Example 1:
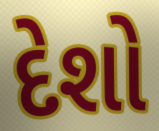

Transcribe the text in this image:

દેશો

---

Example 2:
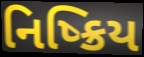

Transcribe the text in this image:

નિષ્ક્રિય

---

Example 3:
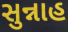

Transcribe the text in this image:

સુન્નાહ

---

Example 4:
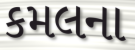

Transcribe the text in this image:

કમલના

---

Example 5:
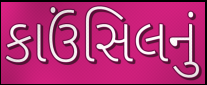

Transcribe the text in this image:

કાઉંસિલનું